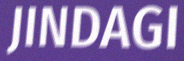
JINDAGI